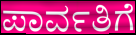
ಪಾರ್ವತಿಗೆ